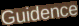
Guidence